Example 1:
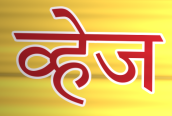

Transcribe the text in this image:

व्हेज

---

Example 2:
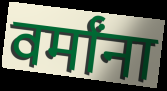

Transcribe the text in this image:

वर्मांना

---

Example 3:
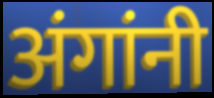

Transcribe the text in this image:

अंगांनी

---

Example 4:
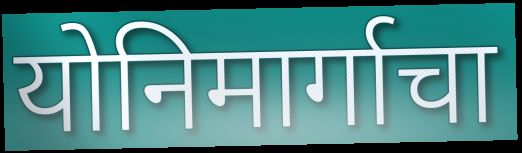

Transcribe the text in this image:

योनिमार्गाचा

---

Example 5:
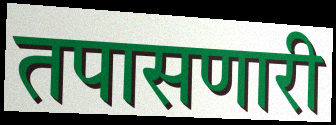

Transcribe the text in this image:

तपासणारी